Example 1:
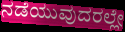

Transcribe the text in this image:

ನಡೆಯುವುದರಲ್ಲೇ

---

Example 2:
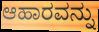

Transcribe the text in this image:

ಆಹಾರವನ್ನು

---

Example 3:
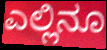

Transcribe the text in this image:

ಎಲ್ಲಿನೂ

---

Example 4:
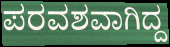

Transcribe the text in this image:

ಪರವಶವಾಗಿದ್ದ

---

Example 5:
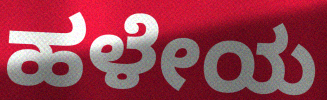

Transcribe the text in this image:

ಹಳೇಯ